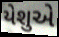
યેશુએ